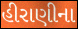
હીરાણીના